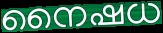
നൈഷധ